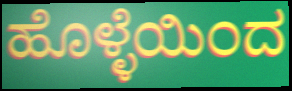
ಹೊಳ್ಳೆಯಿಂದ